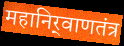
महानिर्वाणतंत्र